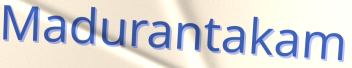
Madurantakam